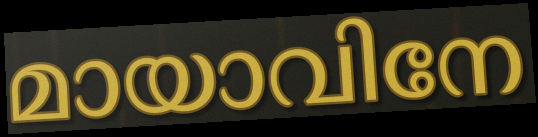
മായാവിനേ